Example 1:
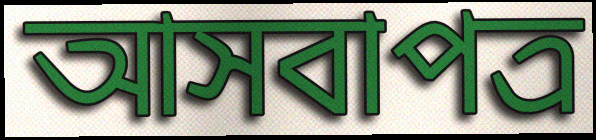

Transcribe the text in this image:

আসবাপত্র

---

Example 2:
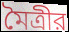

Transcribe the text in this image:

মৈত্রীর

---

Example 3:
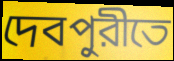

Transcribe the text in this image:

দেবপুরীতে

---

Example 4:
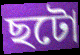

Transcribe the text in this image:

ছটো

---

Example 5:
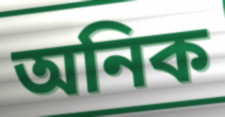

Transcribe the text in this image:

অনিক